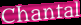
Chantal